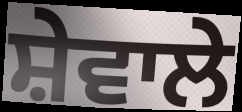
ਸ਼ੇਵਾਲੇ